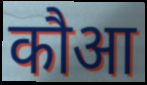
कौआ